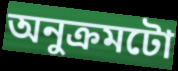
অনুক্ৰমটো